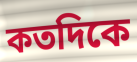
কতদিকে